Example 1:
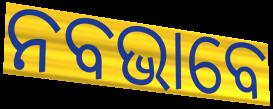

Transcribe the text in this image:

ନବଭାବେ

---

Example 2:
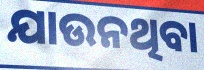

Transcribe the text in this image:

ଯାଉନଥିବା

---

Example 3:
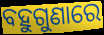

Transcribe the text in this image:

ବହୁଗୁଣାରେ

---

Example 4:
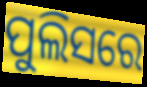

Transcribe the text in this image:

ପୁଲିସରେ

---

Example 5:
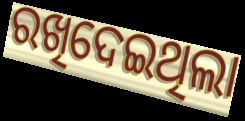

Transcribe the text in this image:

ରଖିଦେଇଥିଲା